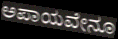
ಅಪಾಯವೇನೂ